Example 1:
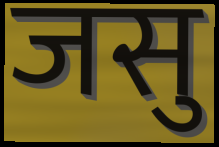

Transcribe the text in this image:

जसु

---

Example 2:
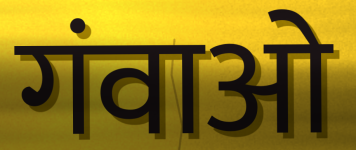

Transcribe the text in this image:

गंवाओ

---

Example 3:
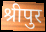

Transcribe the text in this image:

श्रीपुर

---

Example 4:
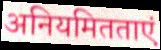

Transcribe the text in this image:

अनियमितताएं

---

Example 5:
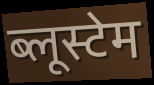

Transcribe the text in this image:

ब्लूस्टेम